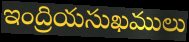
ఇంద్రియసుఖములు